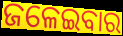
ଜଳେଇବାର